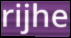
rijhe